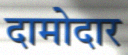
दामोदार